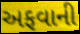
અફવાની